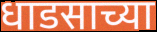
धाडसाच्या